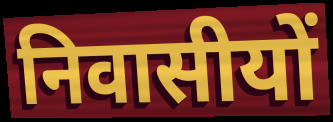
निवासीयों